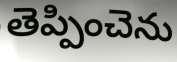
తెప్పించెను